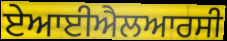
ਏਆਈਐਲਆਰਸੀ